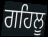
ਗਹਿਲੂ